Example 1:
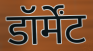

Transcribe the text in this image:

डॉर्मेंट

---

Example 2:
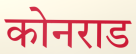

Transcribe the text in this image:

कोनराड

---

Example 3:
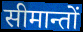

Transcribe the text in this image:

सीमान्तों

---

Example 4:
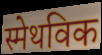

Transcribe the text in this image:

स्मेथविक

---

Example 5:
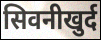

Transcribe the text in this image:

सिवनीखुर्द